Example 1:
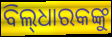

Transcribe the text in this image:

ବିଲ୍‌ଧାରକଙ୍କୁ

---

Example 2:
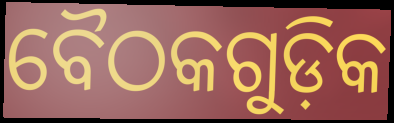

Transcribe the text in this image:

ବୈଠକଗୁଡ଼ିକ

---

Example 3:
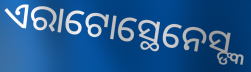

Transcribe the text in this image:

ଏରାଟୋସ୍ଥେନେସ୍ଙ୍କ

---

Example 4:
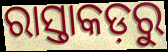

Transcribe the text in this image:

ରାସ୍ତାକଡ଼ରୁ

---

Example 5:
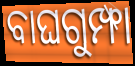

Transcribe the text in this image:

ବାଘଗୁମ୍ଫା